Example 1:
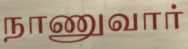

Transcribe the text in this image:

நாணுவார்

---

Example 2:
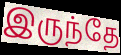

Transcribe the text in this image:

இருந்தே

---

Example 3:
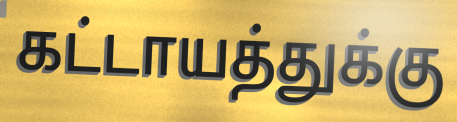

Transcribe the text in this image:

கட்டாயத்துக்கு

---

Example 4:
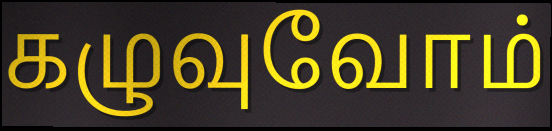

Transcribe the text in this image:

கழுவுவோம்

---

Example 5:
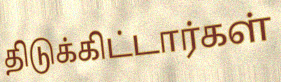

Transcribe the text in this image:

திடுக்கிட்டார்கள்